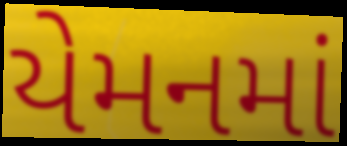
યેમનમાં